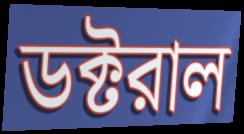
ডক্টরাল